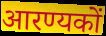
आरण्यकों